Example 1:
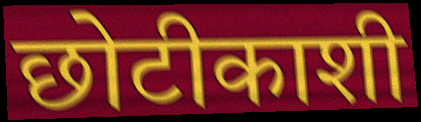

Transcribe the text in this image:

छोटीकाशी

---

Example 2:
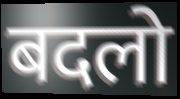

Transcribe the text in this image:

बदलो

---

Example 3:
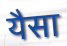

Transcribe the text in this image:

यैसा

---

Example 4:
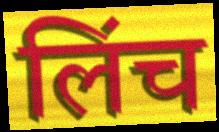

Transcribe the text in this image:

लिंच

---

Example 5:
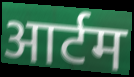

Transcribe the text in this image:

आर्टम